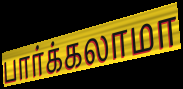
பார்க்கலாமா